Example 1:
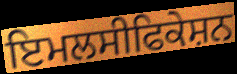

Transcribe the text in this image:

ਇਮਲਸੀਫਿਕੇਸ਼ਨ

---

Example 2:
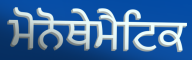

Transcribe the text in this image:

ਮੋਨੋਥੇਮੈਟਿਕ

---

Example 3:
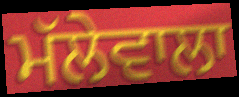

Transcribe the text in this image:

ਮੱਲੇਵਾਲਾ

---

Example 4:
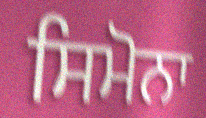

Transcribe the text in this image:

ਸਿਮੋਨਾ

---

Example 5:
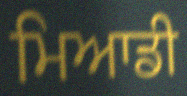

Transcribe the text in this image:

ਮਿਆਡੀ